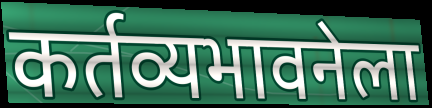
कर्तव्यभावनेला